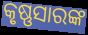
କୃଷ୍ଣସାରଙ୍କ